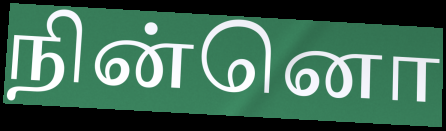
நின்னொ